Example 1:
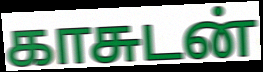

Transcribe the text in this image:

காசுடன்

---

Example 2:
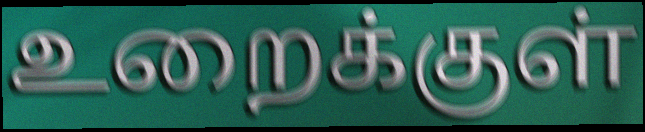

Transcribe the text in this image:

உறைக்குள்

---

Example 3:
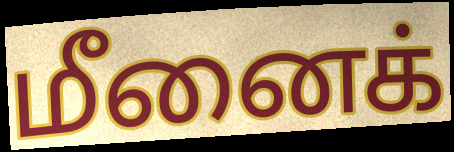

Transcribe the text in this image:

மீனைக்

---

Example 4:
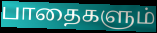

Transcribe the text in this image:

பாதைகளும்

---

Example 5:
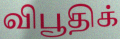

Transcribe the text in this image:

விபூதிக்